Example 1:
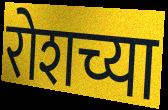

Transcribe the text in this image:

रोशच्या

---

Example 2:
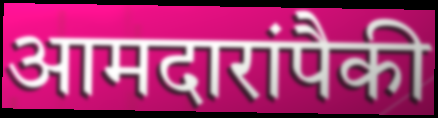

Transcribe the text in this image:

आमदारांपैकी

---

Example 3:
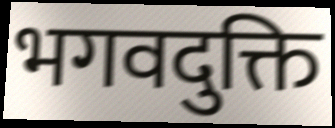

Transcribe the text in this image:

भगवदुक्ति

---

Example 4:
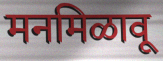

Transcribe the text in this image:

मनमिळावू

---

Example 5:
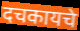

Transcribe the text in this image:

दचकायचे